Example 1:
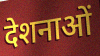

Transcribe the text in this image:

देशनाओं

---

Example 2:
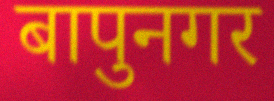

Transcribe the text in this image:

बापुनगर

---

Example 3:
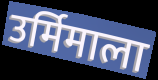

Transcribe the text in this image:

उर्मिमाला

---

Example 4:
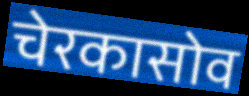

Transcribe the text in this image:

चेरकासोव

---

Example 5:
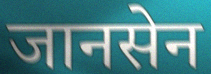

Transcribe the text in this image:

जानसेन